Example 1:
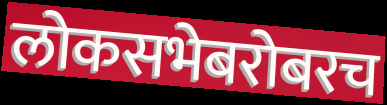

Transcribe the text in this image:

लोकसभेबरोबरच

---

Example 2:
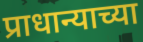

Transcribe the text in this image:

प्राधान्याच्या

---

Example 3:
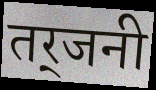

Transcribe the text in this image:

तर्जनी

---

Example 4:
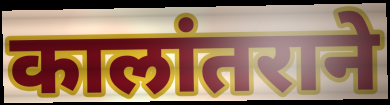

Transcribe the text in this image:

कालांतराने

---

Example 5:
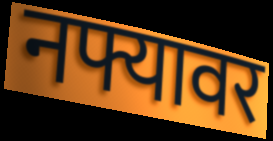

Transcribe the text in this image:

नफ्यावर